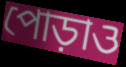
পোড়াও